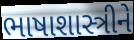
ભાષાશાસ્ત્રીને